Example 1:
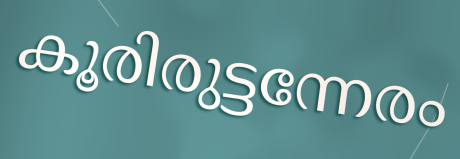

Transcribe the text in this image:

കൂരിരുട്ടന്നേരം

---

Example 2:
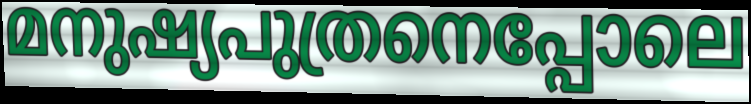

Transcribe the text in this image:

മനുഷ്യപുത്രനെപ്പോലെ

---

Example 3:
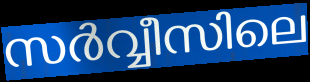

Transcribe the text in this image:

സർവ്വീസിലെ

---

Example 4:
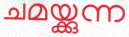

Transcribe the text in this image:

ചമയ്ക്കുന്ന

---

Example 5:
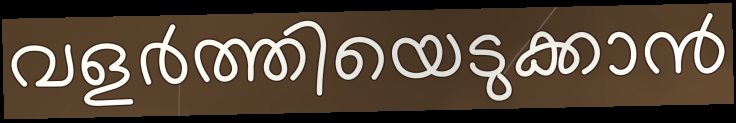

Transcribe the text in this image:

വളർത്തിയെടുക്കാൻ